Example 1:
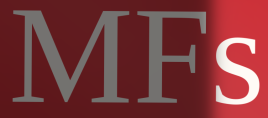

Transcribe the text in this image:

MFs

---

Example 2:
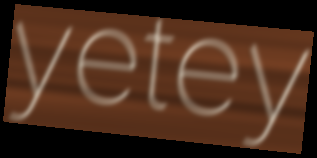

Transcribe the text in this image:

yetey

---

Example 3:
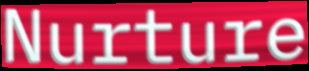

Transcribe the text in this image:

Nurture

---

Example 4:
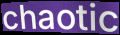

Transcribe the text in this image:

chaotic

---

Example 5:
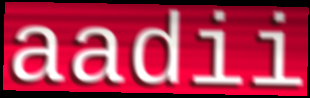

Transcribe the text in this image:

aadii